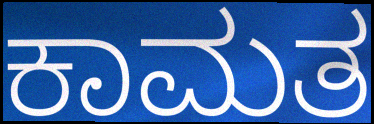
ಕಾಮತ